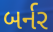
બર્નર